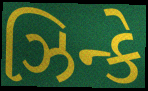
ઝિન્કે